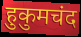
हुकुमचंद